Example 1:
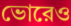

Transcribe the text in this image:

ভোরেও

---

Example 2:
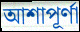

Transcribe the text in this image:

আশাপূর্ণা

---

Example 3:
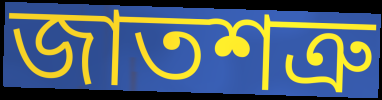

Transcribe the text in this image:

জাতশত্রু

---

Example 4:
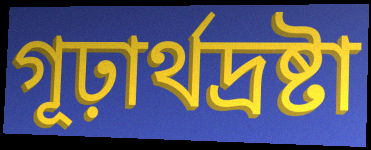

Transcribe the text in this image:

গূঢ়ার্থদ্রষ্টা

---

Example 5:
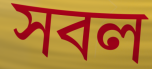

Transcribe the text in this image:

সবল